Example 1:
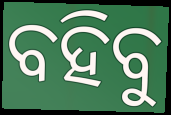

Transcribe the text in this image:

ବହିବୁ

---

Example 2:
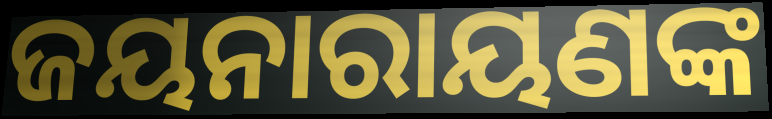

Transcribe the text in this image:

ଜୟନାରାୟଣଙ୍କ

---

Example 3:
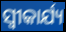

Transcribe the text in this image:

ସ୍ଵୀକାର୍ଯ୍ୟ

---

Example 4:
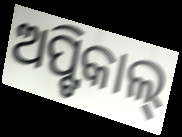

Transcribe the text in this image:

ଅପ୍ଟିକାଲ୍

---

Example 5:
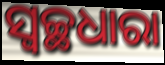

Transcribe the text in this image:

ସ୍ୱଚ୍ଛଧାରା